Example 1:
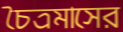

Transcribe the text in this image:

চৈত্রমাসের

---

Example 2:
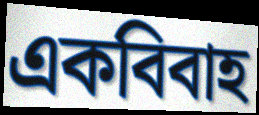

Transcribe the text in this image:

একবিবাহ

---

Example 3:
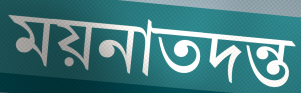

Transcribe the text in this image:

ময়নাতদন্ত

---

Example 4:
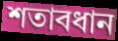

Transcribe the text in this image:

শতাবধান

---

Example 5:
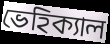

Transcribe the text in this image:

ভেহিক্যাল